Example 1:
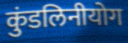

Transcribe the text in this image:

कुंडलिनीयोग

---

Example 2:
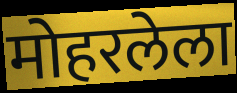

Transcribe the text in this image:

मोहरलेला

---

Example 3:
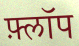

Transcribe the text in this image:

फ़्लॉप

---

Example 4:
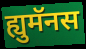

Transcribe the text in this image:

ह्युमॅनस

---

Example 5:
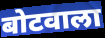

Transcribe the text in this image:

बोटवाला